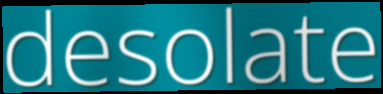
desolate